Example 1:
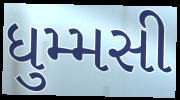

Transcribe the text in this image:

ધુમ્મસી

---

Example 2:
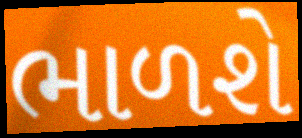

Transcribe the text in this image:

ભાળશે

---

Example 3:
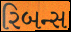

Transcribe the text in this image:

રિબન્સ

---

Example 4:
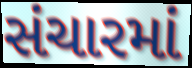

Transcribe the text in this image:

સંચારમાં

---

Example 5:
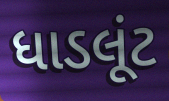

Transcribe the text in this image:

ધાડલૂંટ